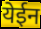
येईन